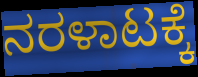
ನರಳಾಟಕ್ಕೆ